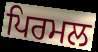
ਪਿਰਮਲ